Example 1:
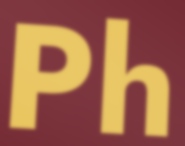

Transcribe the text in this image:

Ph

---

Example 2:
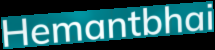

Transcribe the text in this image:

Hemantbhai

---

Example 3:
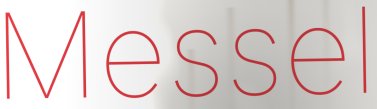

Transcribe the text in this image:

Messel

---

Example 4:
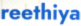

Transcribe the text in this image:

reethiya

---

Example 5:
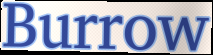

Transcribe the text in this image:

Burrow